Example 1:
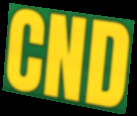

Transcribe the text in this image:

CND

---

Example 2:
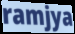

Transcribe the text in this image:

ramjya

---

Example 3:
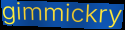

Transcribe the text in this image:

gimmickry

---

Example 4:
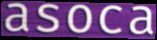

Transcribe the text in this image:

asoca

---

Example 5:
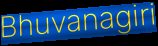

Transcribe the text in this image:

Bhuvanagiri